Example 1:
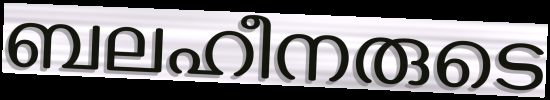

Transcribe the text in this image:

ബലഹീനരുടെ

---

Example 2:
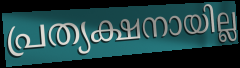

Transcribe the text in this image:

പ്രത്യക്ഷനായില്ല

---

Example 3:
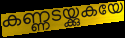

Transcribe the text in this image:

കണ്ണടയ്ക്കുകയേ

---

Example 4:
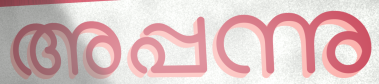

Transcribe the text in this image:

അപ്പന്നു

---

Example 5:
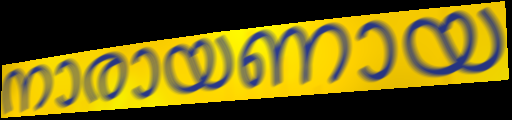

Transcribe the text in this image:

നാരായണായ